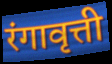
रंगावृत्ती